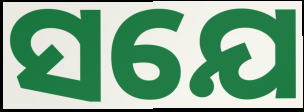
ସଯେ